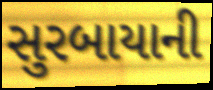
સુરબાયાની